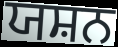
ਯਸ਼ਨ